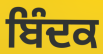
ਬਿੰਦਕ